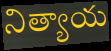
నిత్యాయ